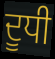
ਦੂਧੀ